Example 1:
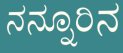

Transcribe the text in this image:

ನನ್ನೂರಿನ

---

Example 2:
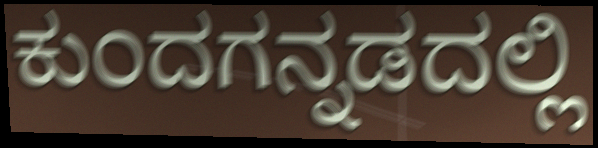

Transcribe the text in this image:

ಕುಂದಗನ್ನಡದಲ್ಲಿ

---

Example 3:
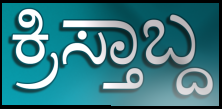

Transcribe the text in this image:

ಕ್ರಿಸ್ತಾಬ್ದ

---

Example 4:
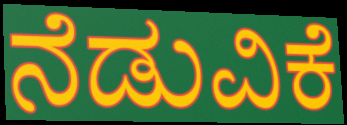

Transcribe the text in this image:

ನೆಡುವಿಕೆ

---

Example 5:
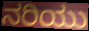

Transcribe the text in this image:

ನರಿಯು